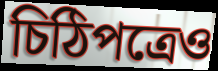
চিঠিপত্রেও